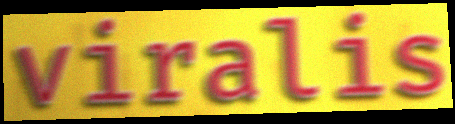
viralis